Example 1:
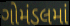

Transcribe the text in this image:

ગોમંડલમાં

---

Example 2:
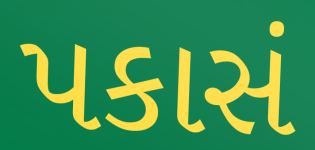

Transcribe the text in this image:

પકાસં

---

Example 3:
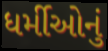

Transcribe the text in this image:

ધર્મીઓનું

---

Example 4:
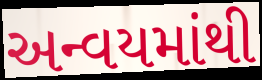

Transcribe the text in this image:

અન્વયમાંથી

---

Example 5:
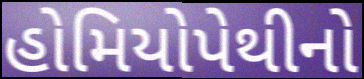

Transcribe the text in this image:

હોમિયોપેથીનો